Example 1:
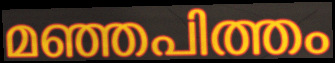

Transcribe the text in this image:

മഞ്ഞപിത്തം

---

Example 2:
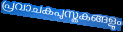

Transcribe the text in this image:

പ്രവാചകപുസ്തകങ്ങളും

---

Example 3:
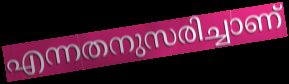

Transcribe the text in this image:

എന്നതനുസരിച്ചാണ്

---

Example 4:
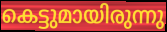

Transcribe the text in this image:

കെട്ടുമായിരുന്നു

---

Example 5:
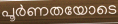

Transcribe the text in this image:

പൂർണതയോടെ